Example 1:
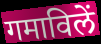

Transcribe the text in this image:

गमाविलें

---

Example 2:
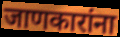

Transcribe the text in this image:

जाणकारांना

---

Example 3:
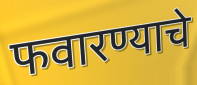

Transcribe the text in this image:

फवारण्याचे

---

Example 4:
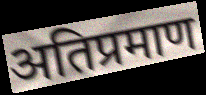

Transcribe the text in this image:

अतिप्रमाण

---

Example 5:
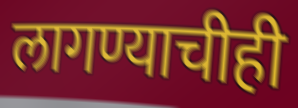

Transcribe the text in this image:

लागण्याचीही